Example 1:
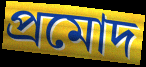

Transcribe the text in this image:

প্রমোদ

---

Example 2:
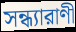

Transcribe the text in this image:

সন্ধ্যারাণী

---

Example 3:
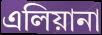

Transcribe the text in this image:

এলিয়ানা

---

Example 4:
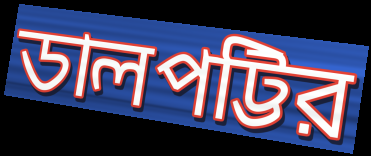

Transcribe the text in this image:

ডালপট্টির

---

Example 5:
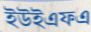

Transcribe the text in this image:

ইউইএফএ